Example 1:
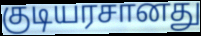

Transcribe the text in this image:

குடியரசானது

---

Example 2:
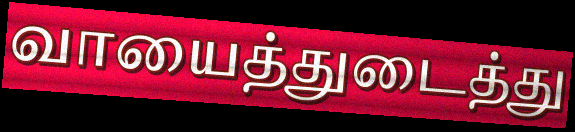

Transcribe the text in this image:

வாயைத்துடைத்து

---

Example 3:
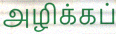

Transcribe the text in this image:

அழிக்கப்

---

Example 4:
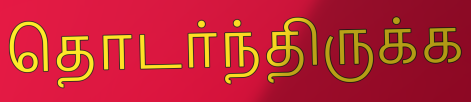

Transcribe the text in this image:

தொடர்ந்திருக்க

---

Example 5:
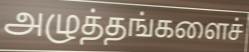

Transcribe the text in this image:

அழுத்தங்களைச்